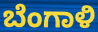
ಬೆಂಗಾಳಿ